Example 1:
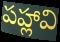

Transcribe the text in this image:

పహ్లావి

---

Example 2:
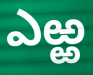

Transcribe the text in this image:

ఎఱ్ఱ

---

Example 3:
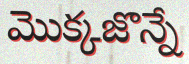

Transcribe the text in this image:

మొక్కజొన్నే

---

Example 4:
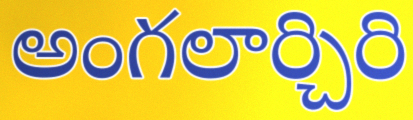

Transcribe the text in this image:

అంగలార్చిరి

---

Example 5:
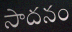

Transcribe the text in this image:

సాదనం